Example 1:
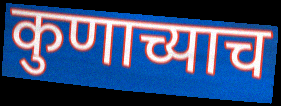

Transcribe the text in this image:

कुणाच्याच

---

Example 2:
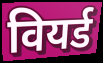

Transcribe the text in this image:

वियर्ड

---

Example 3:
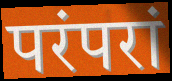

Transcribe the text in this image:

परंपरां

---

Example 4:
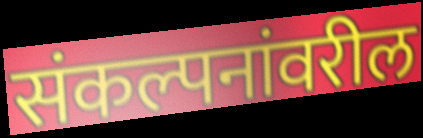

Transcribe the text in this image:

संकल्पनांवरील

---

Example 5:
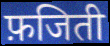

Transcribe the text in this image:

फ़जिती